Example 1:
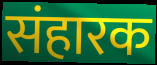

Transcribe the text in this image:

संहारक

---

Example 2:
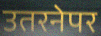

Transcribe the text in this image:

उतरनेपर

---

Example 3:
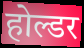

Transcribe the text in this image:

होल्डर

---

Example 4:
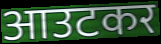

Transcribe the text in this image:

आउटकर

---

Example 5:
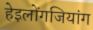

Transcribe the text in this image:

हेइलोंगजियांग